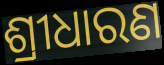
ଶ୍ରୀଧାରଣ